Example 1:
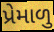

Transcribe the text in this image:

પ્રેમાળુ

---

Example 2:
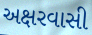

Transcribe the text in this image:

અક્ષરવાસી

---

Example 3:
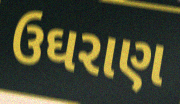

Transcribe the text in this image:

ઉઘરાણ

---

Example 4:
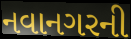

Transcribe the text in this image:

નવાનગરની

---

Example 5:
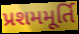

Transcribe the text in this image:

પ્રશમમૂર્તિ